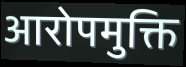
आरोपमुक्ति